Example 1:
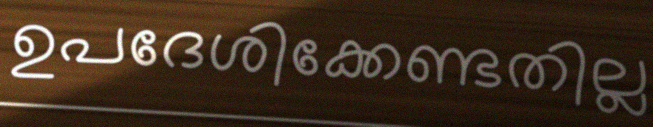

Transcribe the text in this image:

ഉപദേശിക്കേണ്ടതില്ല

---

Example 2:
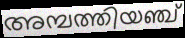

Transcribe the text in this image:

അമ്പത്തിയഞ്ച്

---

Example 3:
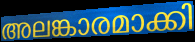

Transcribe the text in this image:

അലങ്കാരമാക്കി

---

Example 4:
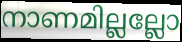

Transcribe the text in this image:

നാണമില്ലല്ലോ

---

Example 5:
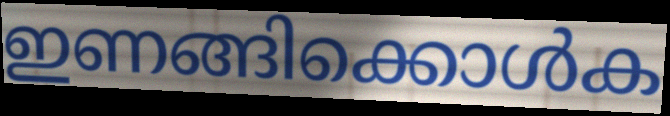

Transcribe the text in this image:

ഇണങ്ങിക്കൊൾക